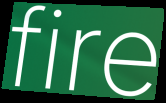
fire